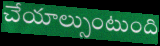
చేయాల్సుంటుంది